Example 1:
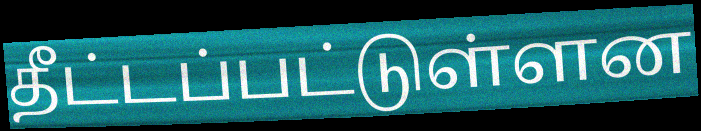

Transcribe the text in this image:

தீட்டப்பட்டுள்ளன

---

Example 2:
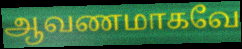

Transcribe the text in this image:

ஆவணமாகவே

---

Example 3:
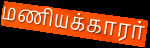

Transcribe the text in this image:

மணியக்காரர்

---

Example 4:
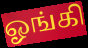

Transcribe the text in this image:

ஓங்கி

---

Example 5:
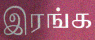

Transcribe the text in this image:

இரங்க